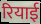
रियाई